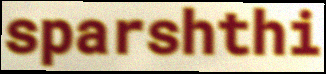
sparshthi